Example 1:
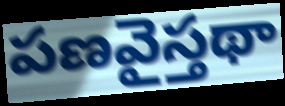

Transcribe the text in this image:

పణవైస్తథా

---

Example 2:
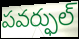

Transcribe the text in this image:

పవర్ఫుల్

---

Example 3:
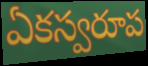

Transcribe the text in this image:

ఏకస్వరూప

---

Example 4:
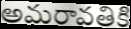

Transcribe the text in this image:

అమరావతికి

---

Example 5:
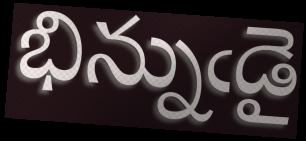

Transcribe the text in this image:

భిన్నుఁడై